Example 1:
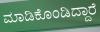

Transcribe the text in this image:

ಮಾಡಿಕೊಂಡಿದ್ದಾರೆ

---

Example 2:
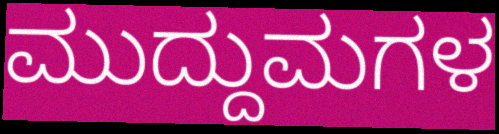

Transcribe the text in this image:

ಮುದ್ದುಮಗಳ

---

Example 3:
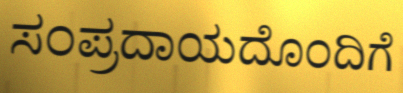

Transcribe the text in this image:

ಸಂಪ್ರದಾಯದೊಂದಿಗೆ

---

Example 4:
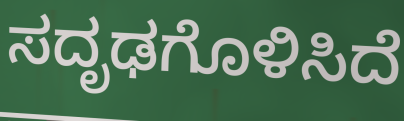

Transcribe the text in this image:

ಸದೃಢಗೊಳಿಸಿದೆ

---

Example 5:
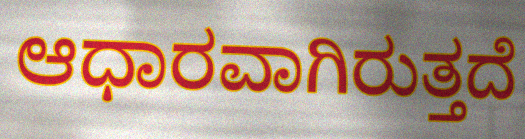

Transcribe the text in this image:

ಆಧಾರವಾಗಿರುತ್ತದೆ